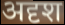
अदृश